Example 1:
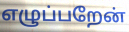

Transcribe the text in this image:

எழுப்பறேன்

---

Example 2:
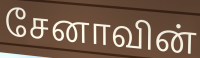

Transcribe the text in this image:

சேனாவின்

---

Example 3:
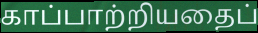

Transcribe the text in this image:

காப்பாற்றியதைப்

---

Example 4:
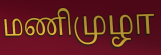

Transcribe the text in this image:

மணிமுழா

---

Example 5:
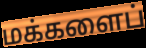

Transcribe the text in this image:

மக்களைப்